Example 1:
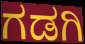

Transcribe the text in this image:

ಗಡಗಿ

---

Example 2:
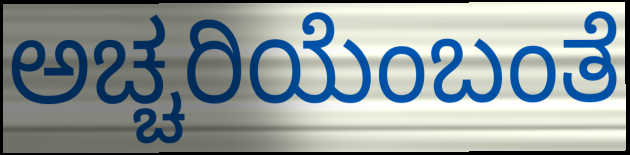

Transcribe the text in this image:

ಅಚ್ಚರಿಯೆಂಬಂತೆ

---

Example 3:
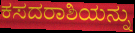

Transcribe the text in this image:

ಕಸದರಾಶಿಯನ್ನು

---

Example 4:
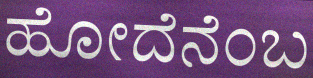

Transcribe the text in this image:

ಹೋದೆನೆಂಬ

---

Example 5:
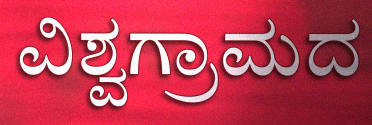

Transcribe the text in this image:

ವಿಶ್ವಗ್ರಾಮದ